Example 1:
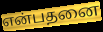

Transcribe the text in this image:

என்பதனை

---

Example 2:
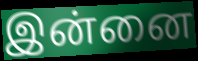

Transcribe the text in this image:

இன்னை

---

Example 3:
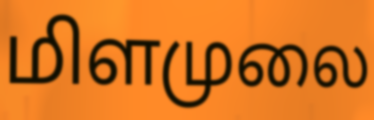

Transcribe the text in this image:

மிளமுலை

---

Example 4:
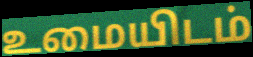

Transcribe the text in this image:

உமையிடம்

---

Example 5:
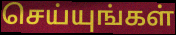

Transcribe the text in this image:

செய்யுங்கள்